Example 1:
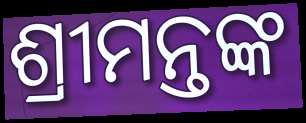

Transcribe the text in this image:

ଶ୍ରୀମନ୍ତଙ୍କ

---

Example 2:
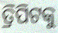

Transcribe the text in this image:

ତ୍ରିପିଟକୁ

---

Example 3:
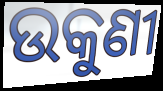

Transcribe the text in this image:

ଉକୁଣୀ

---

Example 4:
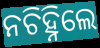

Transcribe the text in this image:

ନଚିହ୍ନିଲେ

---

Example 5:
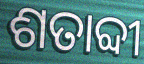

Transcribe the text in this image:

ଶତାବ୍ଦୀ